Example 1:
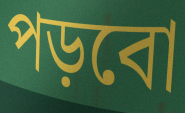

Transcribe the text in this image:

পড়বো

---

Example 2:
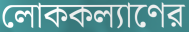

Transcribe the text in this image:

লোককল্যাণের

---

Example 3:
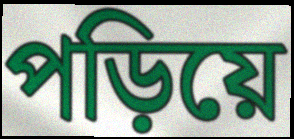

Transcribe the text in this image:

পড়িয়ে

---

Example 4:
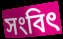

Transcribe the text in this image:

সংবিৎ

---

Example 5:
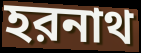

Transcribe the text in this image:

হরনাথ